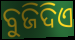
ବୁଜିଦିଏ